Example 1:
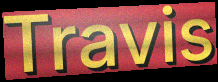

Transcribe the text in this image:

Travis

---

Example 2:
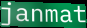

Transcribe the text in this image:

janmat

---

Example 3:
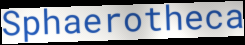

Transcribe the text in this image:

Sphaerotheca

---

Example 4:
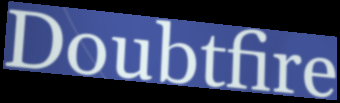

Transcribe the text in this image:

Doubtfire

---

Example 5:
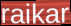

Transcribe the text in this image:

raikar